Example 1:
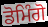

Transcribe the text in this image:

ਡੋਮਿੰਗੋ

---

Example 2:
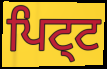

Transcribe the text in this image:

ਪਿਟ੍ਟ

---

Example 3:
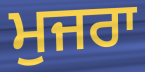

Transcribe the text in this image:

ਮੁਜਰਾ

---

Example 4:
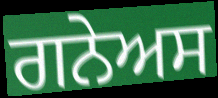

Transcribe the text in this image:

ਗਨੇਅਸ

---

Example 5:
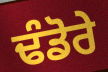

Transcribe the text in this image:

ਢੰਡੋਰੇ